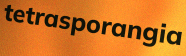
tetrasporangia